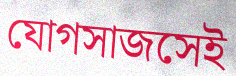
যোগসাজসেই